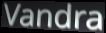
Vandra